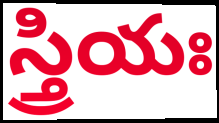
స్త్రియః